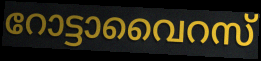
റോട്ടാവൈറസ്